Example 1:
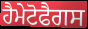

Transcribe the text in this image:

ਹੈਮੇਟੋਫੈਗਸ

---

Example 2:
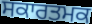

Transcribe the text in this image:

ਸਕਾਰਤਮਕ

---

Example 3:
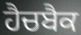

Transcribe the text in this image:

ਹੈਚਬੈਕ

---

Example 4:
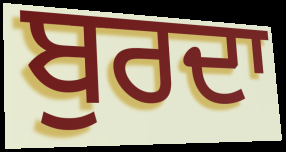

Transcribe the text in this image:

ਬੁਰਦਾ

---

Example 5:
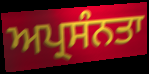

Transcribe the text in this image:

ਅਪ੍ਰਸੰਨਤਾ